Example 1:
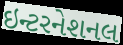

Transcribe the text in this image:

ઇન્ટરનેશનલ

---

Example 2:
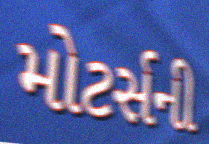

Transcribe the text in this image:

મોટર્સની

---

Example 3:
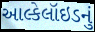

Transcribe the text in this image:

આલ્કેલૉઇડનું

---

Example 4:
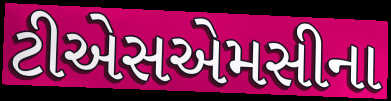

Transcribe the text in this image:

ટીએસએમસીના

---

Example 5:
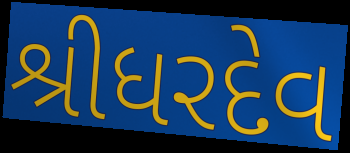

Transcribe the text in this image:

શ્રીધરદેવ